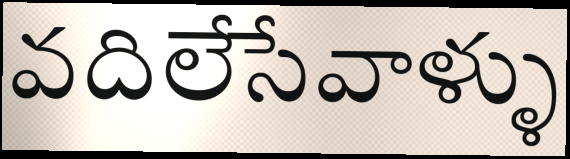
వదిలేసేవాళ్ళు